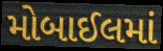
મોબાઈલમાં